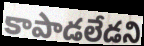
కాపాడలేడని